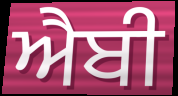
ਐਬੀ